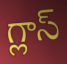
గ్లాస్